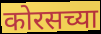
कोरसच्या